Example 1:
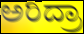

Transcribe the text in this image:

ಅರಿದ್ರಾ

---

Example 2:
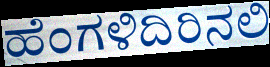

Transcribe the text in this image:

ಹೆಂಗಳಿದಿರಿನಲಿ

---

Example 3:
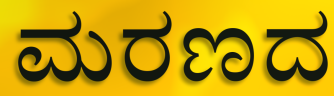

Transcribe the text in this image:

ಮರಣದ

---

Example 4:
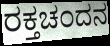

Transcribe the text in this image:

ರಕ್ತಚಂದನ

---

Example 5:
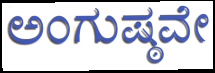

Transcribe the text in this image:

ಅಂಗುಷ್ಠವೇ